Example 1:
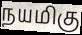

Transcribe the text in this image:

நயமிகு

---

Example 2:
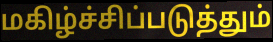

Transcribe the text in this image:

மகிழ்ச்சிப்படுத்தும்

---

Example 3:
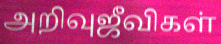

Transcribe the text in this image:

அறிவுஜீவிகள்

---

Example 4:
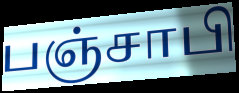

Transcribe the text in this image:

பஞ்சாபி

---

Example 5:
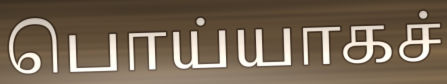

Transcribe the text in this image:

பொய்யாகச்